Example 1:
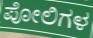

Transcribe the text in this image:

ಪೋಲಿಗಳ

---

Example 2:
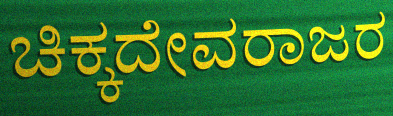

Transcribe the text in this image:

ಚಿಕ್ಕದೇವರಾಜರ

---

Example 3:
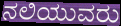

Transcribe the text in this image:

ನಲಿಯುವರು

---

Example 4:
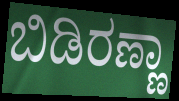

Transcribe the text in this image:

ಬಿಡಿರಣ್ಣಾ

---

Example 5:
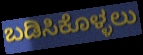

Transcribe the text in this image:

ಬಡಿಸಿಕೊಳ್ಳಲು